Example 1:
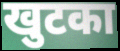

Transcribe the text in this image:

खुटका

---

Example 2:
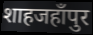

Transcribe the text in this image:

शाहजहाँपुर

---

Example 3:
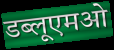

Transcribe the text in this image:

डब्लूएमओ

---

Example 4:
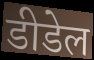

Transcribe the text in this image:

डीडेल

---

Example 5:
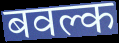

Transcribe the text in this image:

बवल्क